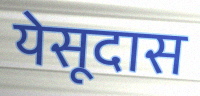
येसूदास